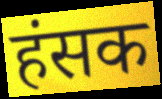
हंसक